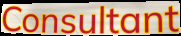
Consultant